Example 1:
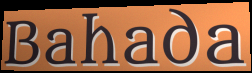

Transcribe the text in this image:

Bahada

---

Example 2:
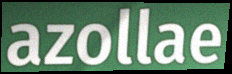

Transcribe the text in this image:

azollae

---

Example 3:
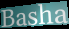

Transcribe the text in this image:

Basha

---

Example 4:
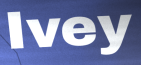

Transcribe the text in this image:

Ivey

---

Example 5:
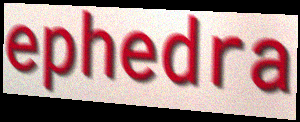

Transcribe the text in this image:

ephedra